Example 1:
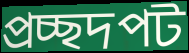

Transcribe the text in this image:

প্রচ্ছদপট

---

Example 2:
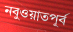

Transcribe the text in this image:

নবুওয়াতপূর্ব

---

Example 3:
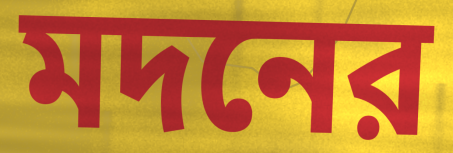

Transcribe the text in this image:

মদনের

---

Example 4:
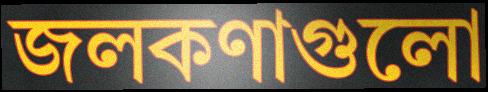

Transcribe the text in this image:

জলকণাগুলো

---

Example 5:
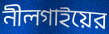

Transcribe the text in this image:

নীলগাইয়ের